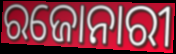
ରଜୋନାରୀ